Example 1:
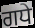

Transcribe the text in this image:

ਗਧੇ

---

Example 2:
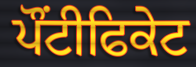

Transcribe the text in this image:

ਪੌਂਟੀਫਿਕੇਟ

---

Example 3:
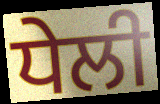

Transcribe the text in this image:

ਧੇਲੀ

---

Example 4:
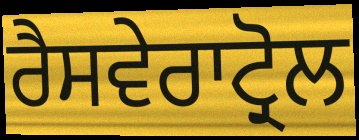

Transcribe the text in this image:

ਰੈਸਵੇਰਾਟ੍ਰੋਲ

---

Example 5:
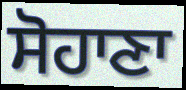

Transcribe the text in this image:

ਸੋਹਾਣਾ